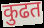
कुढत